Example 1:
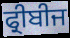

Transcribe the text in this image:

ਫ੍ਰੀਬੀਜ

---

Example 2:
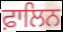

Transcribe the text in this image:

ਫ਼ਾਲਿਨ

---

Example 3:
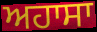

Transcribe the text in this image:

ਅਹਾਸਾ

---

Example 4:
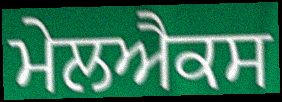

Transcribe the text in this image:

ਮੇਲਐਕਸ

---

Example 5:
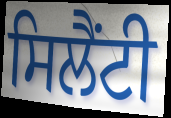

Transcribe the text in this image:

ਸਿਲੈਂਟੀ